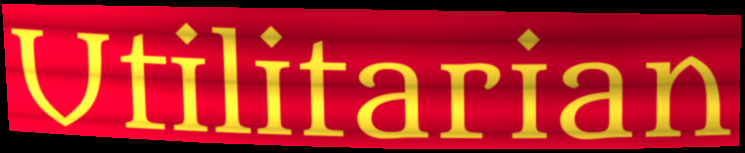
Utilitarian